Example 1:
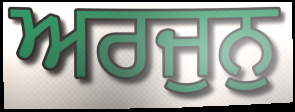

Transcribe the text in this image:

ਅਰਜੁਨੁ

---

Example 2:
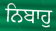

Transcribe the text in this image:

ਨਿਬਾਹੁ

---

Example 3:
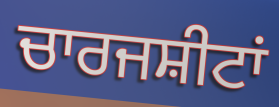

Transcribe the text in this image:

ਚਾਰਜਸ਼ੀਟਾਂ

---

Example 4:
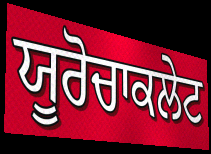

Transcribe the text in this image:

ਯੂਰੋਚਾਕਲੇਟ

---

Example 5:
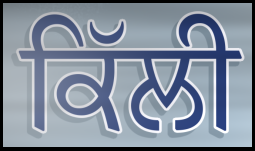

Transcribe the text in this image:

ਕਿੱਲੀ